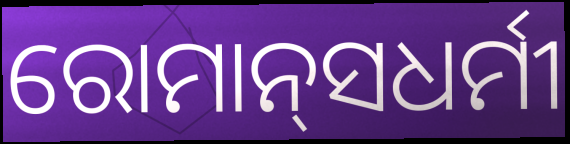
ରୋମାନ୍‍ସଧର୍ମୀ